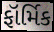
ફૉર્મિક